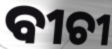
ବୀଚୀ